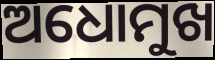
ଅଧୋମୁଖ